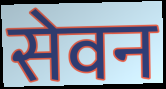
सेवन